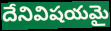
దేనివిషయమై